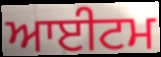
ਆਈਟਮ